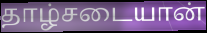
தாழ்சடையான்